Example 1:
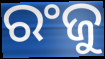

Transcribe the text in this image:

ରଂଜୁ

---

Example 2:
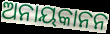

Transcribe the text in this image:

ଅନାୟକାନନ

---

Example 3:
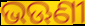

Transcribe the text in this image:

ଭଊଣୀ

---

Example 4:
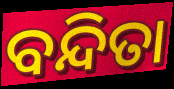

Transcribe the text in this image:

ବନ୍ଦିତା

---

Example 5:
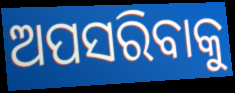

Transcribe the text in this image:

ଅପସରିବାକୁ